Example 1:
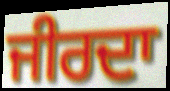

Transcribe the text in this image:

ਜੀਰਦਾ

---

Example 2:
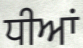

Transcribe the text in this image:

ਧੀਆਂ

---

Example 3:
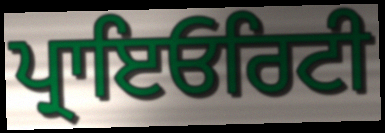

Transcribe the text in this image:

ਪ੍ਰਾਇਓਰਿਟੀ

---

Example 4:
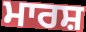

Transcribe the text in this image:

ਮਾਰਸ਼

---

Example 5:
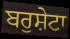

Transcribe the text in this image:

ਬਰੁਸ਼ੇਟਾ